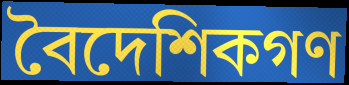
বৈদেশিকগণ